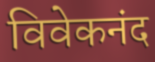
विवेकनंद